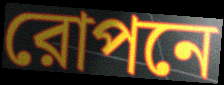
রোপনে